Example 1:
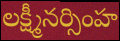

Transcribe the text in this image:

లక్ష్మీనర్సింహ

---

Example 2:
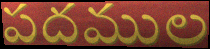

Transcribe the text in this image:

పదముల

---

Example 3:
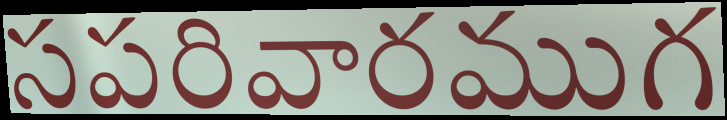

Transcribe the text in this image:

సపరివారముగ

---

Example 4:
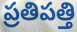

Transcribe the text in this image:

ప్రతిపత్తి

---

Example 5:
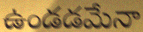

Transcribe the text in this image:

ఉండడమేనా